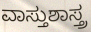
ವಾಸ್ತುಶಾಸ್ತ್ರ